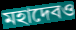
মহাদেবও